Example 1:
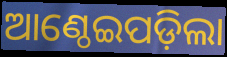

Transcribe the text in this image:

ଆଣ୍ଠେଇପଡ଼ିଲା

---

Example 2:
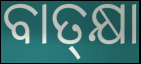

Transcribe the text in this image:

ବାତ୍କ୍ଷା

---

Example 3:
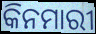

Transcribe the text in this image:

କିନମାରୀ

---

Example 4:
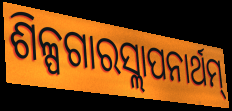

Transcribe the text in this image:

ଶିଳ୍ପଗାରସ୍ଲାପନାର୍ଥମ୍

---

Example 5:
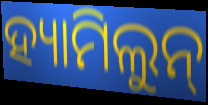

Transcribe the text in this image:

ହ୍ୟାମିଲୁନ୍